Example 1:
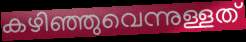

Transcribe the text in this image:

കഴിഞ്ഞുവെന്നുള്ളത്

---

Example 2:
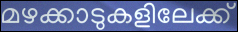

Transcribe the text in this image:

മഴക്കാടുകളിലേക്ക്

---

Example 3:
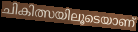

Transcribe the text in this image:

ചികിത്സയിലൂടെയാണ്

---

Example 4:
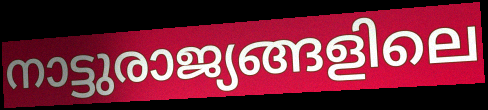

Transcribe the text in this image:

നാട്ടുരാജ്യങ്ങളിലെ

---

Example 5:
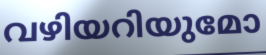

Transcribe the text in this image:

വഴിയറിയുമോ